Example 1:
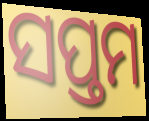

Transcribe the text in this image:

ସପ୍ତମ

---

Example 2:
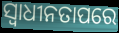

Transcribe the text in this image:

ସ୍ୱାଧୀନତାପରେ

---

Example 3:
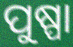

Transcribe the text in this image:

ପୁଷ୍ପା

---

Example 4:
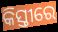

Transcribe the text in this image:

କିସ୍ତୀରେ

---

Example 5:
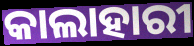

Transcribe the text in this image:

କାଲାହାରୀ